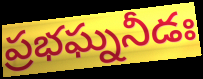
ప్రభఘ్ననీడః